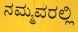
ನಮ್ಮವರಲ್ಲಿ